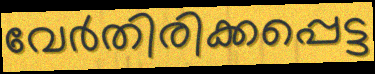
വേർതിരിക്കപ്പെട്ട